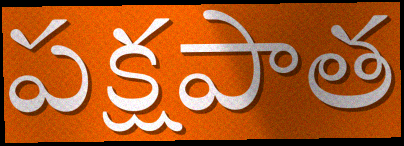
పక్షపాత